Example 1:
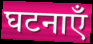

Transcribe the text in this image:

घटनाएँ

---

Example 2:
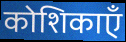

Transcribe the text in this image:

कोशिकाएँ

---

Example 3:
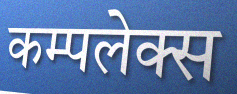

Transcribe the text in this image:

कम्पलेक्स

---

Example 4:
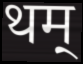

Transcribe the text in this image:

थम्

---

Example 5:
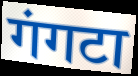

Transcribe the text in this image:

गंगटा